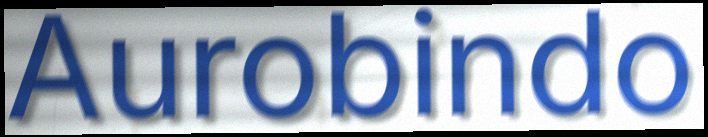
Aurobindo